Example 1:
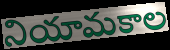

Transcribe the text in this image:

నియామకాల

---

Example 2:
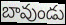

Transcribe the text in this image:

బావుండు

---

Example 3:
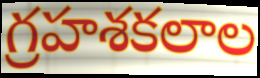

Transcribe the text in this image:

గ్రహశకలాల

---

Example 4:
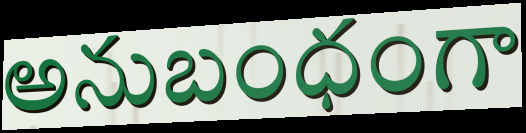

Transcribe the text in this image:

అనుబంధంగా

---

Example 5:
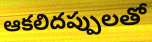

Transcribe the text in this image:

ఆకలిదప్పులతో